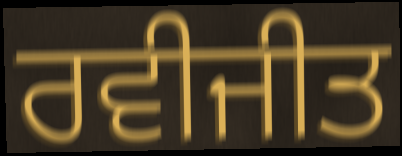
ਰਵੀਜੀਤ